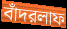
বাঁদরলাফ